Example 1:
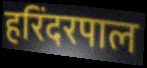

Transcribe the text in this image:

हरिंदरपाल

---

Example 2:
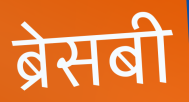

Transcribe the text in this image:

ब्रेसबी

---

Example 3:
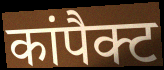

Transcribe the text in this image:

कांपैक्ट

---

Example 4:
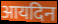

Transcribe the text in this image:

आयदिन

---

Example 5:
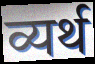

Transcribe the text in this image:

व्यर्थ